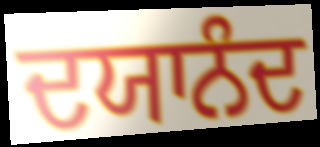
ਦਯਾਨੰਦ